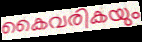
കൈവരികയും